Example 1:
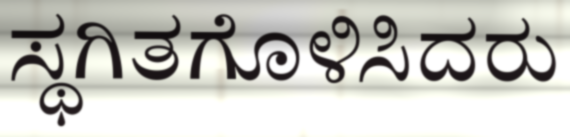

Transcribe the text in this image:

ಸ್ಥಗಿತಗೊಳಿಸಿದರು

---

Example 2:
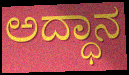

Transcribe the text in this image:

ಅದ್ಧಾನ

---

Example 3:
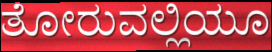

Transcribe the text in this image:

ತೋರುವಲ್ಲಿಯೂ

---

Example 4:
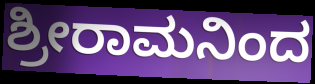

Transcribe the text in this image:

ಶ್ರೀರಾಮನಿಂದ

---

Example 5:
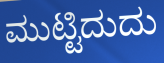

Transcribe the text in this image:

ಮುಟ್ಟಿದುದು